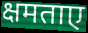
क्षमताए